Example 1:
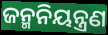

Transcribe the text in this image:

ଜନ୍ମନିୟନ୍ତ୍ରଣ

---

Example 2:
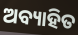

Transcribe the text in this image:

ଅବ୍ୟାହିତ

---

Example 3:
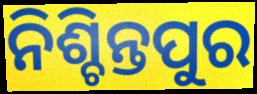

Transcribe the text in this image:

ନିଶ୍ଚିନ୍ତପୁର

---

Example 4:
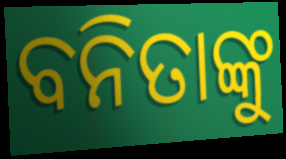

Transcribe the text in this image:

ବନିତାଙ୍କୁ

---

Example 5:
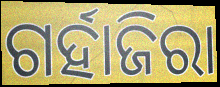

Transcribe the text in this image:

ଗର୍ହାଜିରା